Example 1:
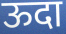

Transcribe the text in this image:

ऊदा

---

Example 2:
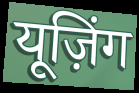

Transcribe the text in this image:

यूज़िंग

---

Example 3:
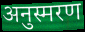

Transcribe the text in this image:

अनुस्मरण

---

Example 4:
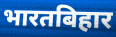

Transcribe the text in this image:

भारतबिहार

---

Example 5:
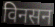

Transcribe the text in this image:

विनसन